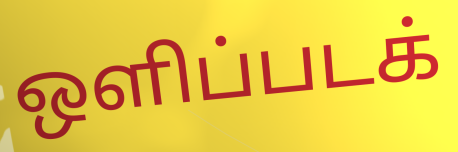
ஒளிப்படக்